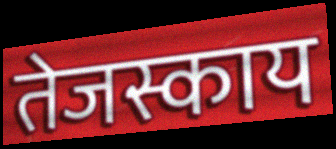
तेजस्काय